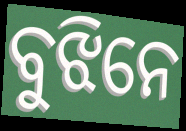
ବୁଝିନେ